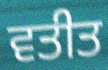
ਵਤੀਤ